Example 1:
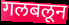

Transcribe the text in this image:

गलबलून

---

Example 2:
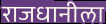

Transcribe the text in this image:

राजधानीला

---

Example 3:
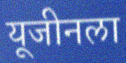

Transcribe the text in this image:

यूजीनला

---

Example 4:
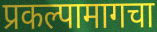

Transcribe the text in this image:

प्रकल्पामागचा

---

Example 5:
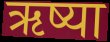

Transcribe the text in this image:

ऋष्या